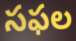
సఫల